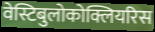
वेस्टिबुलोकोक्लियरिस